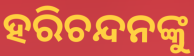
ହରିଚନ୍ଦନଙ୍କୁ